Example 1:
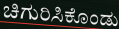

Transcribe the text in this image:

ಚಿಗುರಿಸಿಕೊಂಡು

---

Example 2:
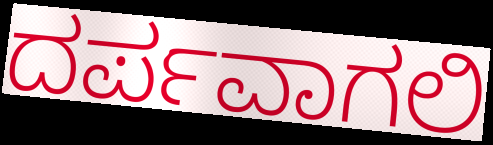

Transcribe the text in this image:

ದರ್ಪವಾಗಲಿ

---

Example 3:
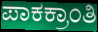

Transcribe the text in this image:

ಪಾಕಕ್ರಾಂತಿ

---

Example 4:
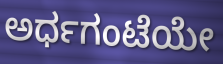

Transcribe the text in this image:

ಅರ್ಧಗಂಟೆಯೇ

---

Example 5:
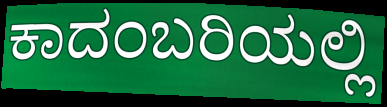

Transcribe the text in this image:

ಕಾದಂಬರಿಯಲ್ಲಿ